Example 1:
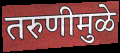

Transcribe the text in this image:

तरुणीमुळे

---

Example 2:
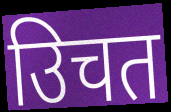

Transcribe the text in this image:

उिचत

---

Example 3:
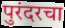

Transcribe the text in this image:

पुरंदरचा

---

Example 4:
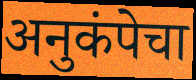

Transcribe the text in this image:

अनुकंपेचा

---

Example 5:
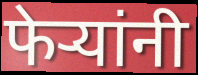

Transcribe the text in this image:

फेऱ्यांनी